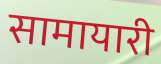
सामायारी